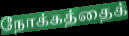
நோக்கத்தைக்